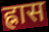
ह्नास